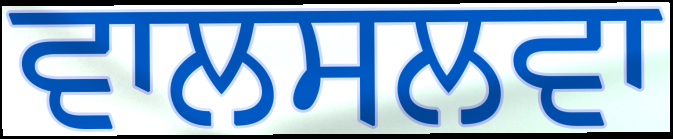
ਵਾਲਸਲਵਾ